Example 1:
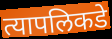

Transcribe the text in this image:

त्यापलिकडे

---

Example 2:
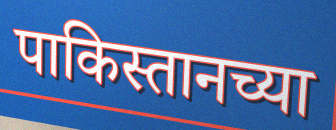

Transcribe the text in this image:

पाकिस्तानच्या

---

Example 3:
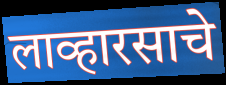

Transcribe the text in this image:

लाव्हारसाचे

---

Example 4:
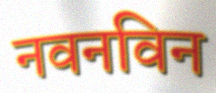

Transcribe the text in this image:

नवनविन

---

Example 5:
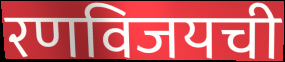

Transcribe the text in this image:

रणविजयची